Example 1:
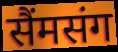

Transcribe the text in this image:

सैंमसंग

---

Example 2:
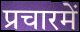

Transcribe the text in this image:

प्रचारमें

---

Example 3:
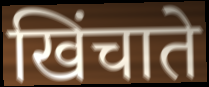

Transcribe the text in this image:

खिंचाते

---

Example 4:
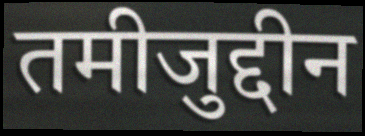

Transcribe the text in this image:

तमीजुद्दीन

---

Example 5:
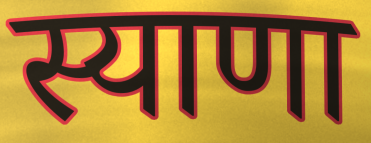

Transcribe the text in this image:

स्याणा